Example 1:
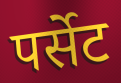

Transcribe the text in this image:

पर्सेट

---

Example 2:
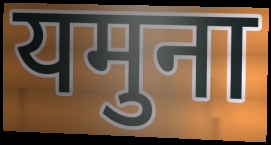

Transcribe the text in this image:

यमुना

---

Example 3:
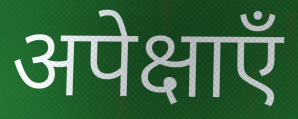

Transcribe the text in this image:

अपेक्षाएँ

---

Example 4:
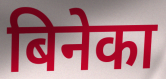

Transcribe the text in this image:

बिनेका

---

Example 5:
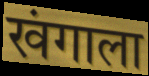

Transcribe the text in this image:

खंगाला